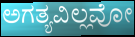
ಅಗತ್ಯವಿಲ್ಲವೋ